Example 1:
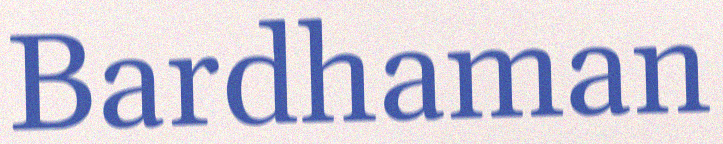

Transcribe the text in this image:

Bardhaman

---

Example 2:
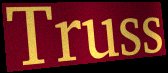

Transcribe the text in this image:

Truss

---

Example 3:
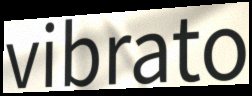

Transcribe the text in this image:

vibrato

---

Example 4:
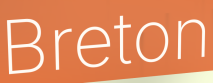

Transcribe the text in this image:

Breton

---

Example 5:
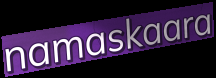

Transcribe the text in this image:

namaskaara